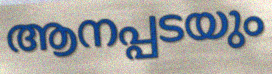
ആനപ്പടയും